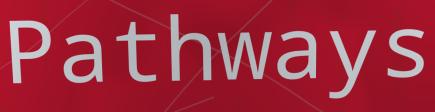
Pathways